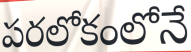
పరలోకంలోనే